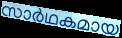
സാർഥകമായ